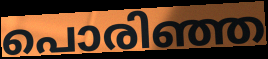
പൊരിഞ്ഞ